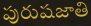
పురుషజాతి